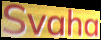
Svaha